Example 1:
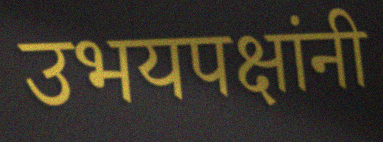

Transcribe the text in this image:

उभयपक्षांनी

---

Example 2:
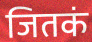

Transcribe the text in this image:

जितकं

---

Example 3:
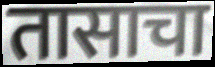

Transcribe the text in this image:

तासाचा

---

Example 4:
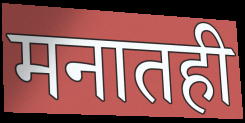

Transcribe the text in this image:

मनातही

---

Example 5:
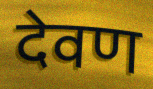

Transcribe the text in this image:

देवण